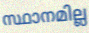
സ്ഥാനമില്ല